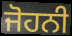
ਜੋਹਨੀ